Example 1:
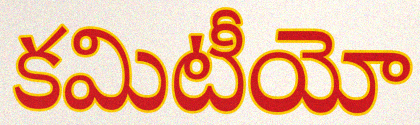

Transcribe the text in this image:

కమిటీయో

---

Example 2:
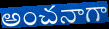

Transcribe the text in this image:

అంచనాగా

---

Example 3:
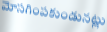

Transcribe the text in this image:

మోసగింపకుండునట్లు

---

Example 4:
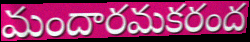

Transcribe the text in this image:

మందారమకరంద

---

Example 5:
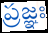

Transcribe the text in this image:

ప్రజ్ఞః